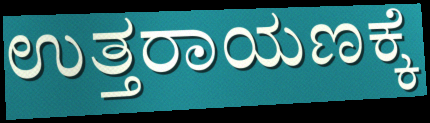
ಉತ್ತರಾಯಣಕ್ಕೆ